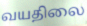
வயதிலை